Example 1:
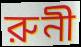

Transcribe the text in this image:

রুনী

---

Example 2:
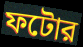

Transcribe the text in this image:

ফটোর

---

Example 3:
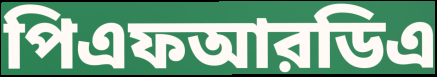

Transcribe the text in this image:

পিএফআরডিএ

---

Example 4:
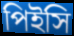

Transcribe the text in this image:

পিইসি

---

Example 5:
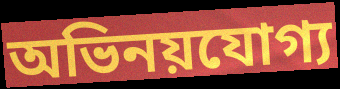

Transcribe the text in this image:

অভিনয়যোগ্য